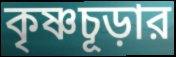
কৃষ্ণচূড়ার